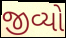
જીવ્યો